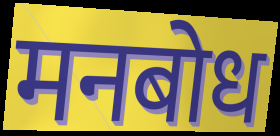
मनबोध